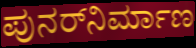
ಪುನರ್‌ನಿರ್ಮಾಣ